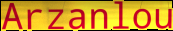
Arzanlou